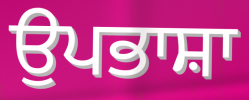
ਉਪਭਾਸ਼ਾ